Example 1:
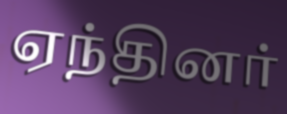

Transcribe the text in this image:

ஏந்தினர்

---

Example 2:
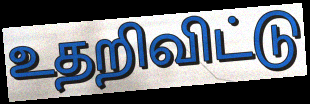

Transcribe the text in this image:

உதறிவிட்டு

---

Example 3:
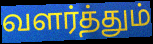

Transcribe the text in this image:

வளர்த்தும்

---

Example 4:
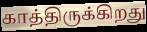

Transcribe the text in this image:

காத்திருக்கிறது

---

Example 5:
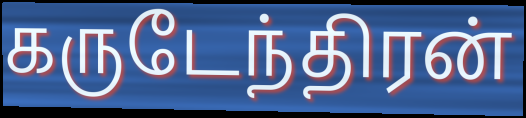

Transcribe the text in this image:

கருடேந்திரன்